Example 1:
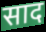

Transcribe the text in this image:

साद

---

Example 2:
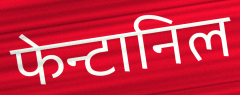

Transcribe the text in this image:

फेन्टानिल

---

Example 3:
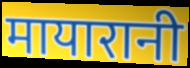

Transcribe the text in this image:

मायारानी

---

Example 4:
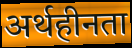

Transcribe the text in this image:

अर्थहीनता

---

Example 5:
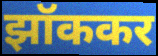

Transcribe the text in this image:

झॉककर